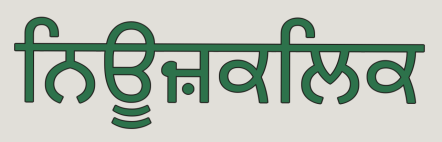
ਨਿਊਜ਼ਕਲਿਕ